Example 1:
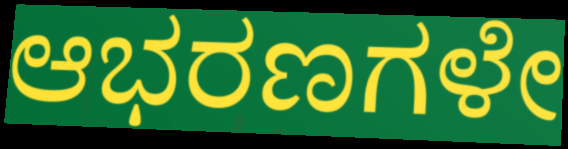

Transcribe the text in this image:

ಆಭರಣಗಳೇ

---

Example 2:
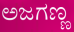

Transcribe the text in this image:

ಅಜಗಣ್ಣ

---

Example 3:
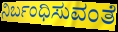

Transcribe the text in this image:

ನಿರ್ಬಂಧಿಸುವಂತೆ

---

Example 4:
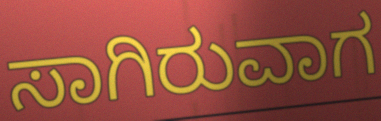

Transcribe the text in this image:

ಸಾಗಿರುವಾಗ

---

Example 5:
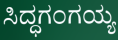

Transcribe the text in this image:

ಸಿದ್ಧಗಂಗಯ್ಯ